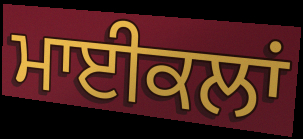
ਮਾਈਕਲਾਂ